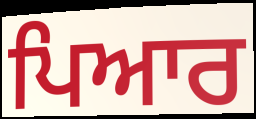
ਪਿਆਰ